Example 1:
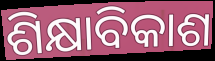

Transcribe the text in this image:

ଶିକ୍ଷାବିକାଶ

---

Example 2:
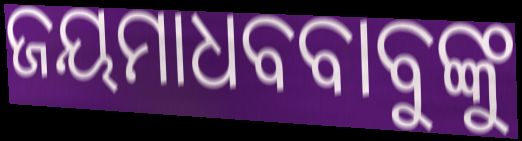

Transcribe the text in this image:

ଜୟମାଧବବାବୁଙ୍କୁ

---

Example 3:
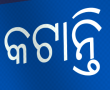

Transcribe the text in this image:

କଟାନ୍ତି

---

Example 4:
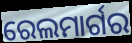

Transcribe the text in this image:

ରେଲମାର୍ଗର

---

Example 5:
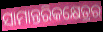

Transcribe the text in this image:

ସାମାନ୍ତରିକକ୍ଷେତ୍ରର